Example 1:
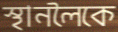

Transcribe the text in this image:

স্থানলৈকে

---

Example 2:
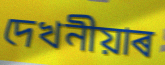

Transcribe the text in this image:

দেখনীয়াৰ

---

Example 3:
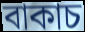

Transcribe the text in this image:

বাকাচ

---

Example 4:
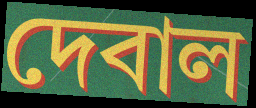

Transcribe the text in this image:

দেবাল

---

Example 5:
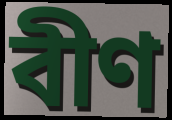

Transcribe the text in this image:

বীণ